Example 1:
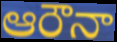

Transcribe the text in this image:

ఆరౌనా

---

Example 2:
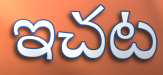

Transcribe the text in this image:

ఇచట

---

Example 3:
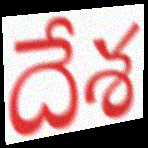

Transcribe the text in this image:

దేశ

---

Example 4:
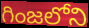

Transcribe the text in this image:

గింజలోని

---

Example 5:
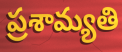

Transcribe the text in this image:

ప్రశామ్యతి